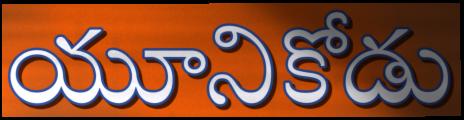
యూనికోడు